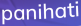
panihati